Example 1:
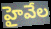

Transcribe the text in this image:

హైవేల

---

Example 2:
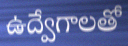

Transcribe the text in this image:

ఉద్వేగాలతో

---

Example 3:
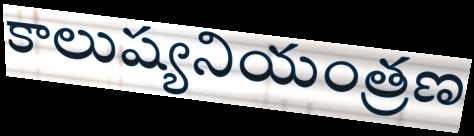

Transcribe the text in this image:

కాలుష్యనియంత్రణ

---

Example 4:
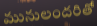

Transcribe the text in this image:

మునులందరితో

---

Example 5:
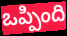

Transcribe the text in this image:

ఒప్పింది